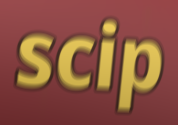
scip